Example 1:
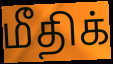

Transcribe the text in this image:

மீதிக்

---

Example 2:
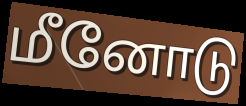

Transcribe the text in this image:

மீனோடு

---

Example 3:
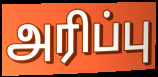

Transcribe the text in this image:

அரிப்பு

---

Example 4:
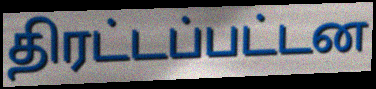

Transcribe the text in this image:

திரட்டப்பட்டன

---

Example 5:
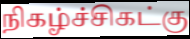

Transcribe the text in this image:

நிகழ்ச்சிகட்கு